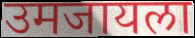
उमजायला